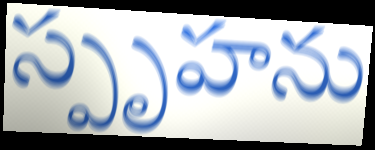
స్పృహను